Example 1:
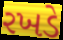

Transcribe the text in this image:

રખડે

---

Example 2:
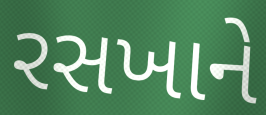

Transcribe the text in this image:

રસખાને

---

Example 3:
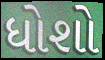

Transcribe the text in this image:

ધોશો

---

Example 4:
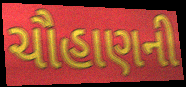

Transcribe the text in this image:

ચૌહાણની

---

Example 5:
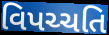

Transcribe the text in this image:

વિપચ્ચતિ